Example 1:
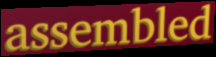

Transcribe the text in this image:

assembled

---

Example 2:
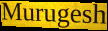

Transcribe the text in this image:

Murugesh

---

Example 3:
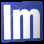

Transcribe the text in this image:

Im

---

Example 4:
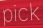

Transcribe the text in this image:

pick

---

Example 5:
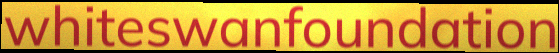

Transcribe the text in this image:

whiteswanfoundation